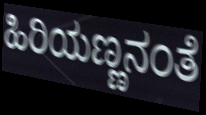
ಹಿರಿಯಣ್ಣನಂತೆ